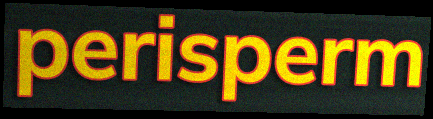
perisperm